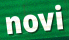
novi